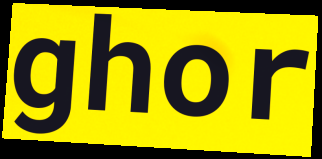
ghor